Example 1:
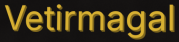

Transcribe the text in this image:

Vetirmagal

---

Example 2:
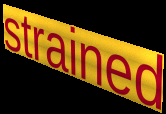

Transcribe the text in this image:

strained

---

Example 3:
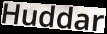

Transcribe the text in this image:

Huddar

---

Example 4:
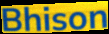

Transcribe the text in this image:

Bhison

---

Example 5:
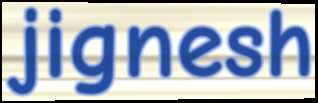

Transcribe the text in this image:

jignesh